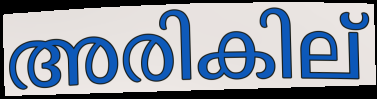
അരികില്